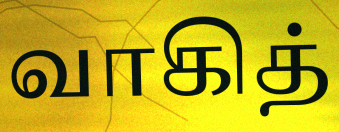
வாகித்